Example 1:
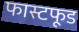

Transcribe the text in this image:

फास्‍टफूड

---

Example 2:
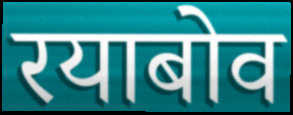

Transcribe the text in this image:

रयाबोव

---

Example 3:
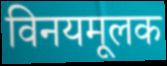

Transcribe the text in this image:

विनयमूलक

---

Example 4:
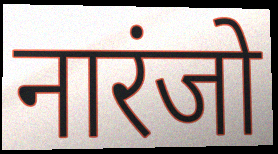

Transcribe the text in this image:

नारंजो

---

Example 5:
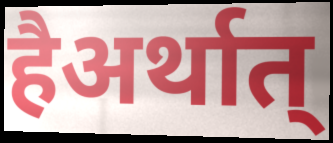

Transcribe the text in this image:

हैअर्थात्